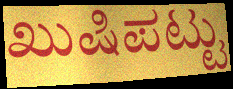
ಖುಷಿಪಟ್ಟು